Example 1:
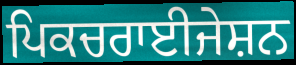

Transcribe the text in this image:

ਪਿਕਚਰਾਈਜੇਸ਼ਨ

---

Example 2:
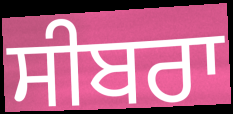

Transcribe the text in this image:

ਸੀਬਰਾ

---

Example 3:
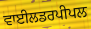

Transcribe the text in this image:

ਵਾਈਲਡਰਪੀਪਲ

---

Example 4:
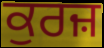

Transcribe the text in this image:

ਕੁਰਜ਼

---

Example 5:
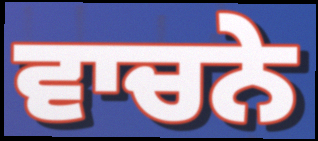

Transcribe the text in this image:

ਵਾਚਨੇ